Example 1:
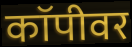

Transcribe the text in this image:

कॉपीवर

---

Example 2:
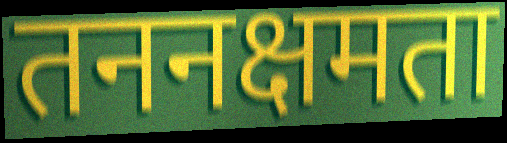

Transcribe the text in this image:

तननक्षमता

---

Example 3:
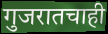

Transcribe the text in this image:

गुजरातचाही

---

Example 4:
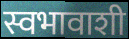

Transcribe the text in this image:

स्वभावाशी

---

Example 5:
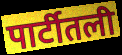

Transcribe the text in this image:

पार्टीतली